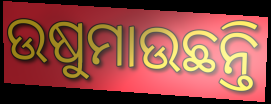
ଉଷୁମାଉଛନ୍ତି